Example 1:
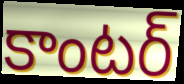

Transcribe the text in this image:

కాంటర్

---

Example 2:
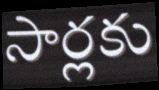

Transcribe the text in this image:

సార్లకు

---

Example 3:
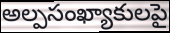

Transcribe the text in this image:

అల్పసంఖ్యాకులపై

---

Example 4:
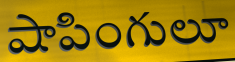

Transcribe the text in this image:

షాపింగులూ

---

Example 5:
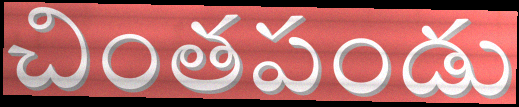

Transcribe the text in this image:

చింతపండు